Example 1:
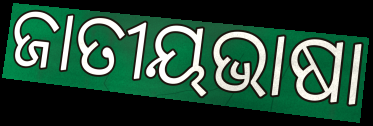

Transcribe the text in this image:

ଜାତୀୟଭାଷା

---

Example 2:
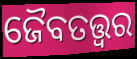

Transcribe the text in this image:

ଜୈବତତ୍ତ୍ୱର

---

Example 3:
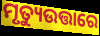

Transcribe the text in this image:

ମୃତ୍ୟୁଉତ୍ତାରେ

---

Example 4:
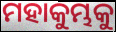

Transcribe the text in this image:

ମହାକୁମ୍ଭକୁ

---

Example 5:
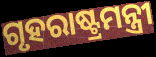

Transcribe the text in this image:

ଗୃହରାଷ୍ଟ୍ରମନ୍ତ୍ରୀ